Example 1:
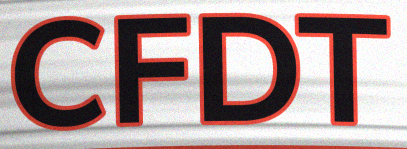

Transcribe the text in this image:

CFDT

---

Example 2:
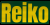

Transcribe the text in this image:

Reiko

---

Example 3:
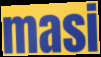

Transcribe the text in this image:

masi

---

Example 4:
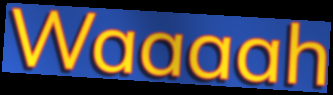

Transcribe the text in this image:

Waaaah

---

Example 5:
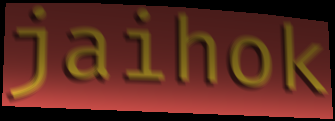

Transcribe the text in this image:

jaihok